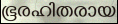
ഭൂരഹിതരായ